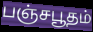
பஞ்சபூதம்